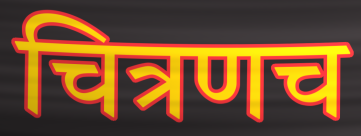
चित्रणच